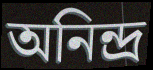
অনিন্দ্র